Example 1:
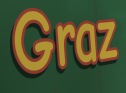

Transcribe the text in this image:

Graz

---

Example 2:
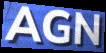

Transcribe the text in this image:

AGN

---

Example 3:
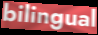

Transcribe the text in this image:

bilingual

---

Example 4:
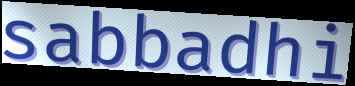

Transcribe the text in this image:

sabbadhi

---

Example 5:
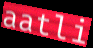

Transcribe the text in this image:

aatli